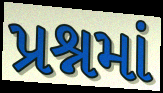
પ્રશ્નમાં